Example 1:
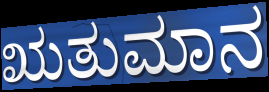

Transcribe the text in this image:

ಋತುಮಾನ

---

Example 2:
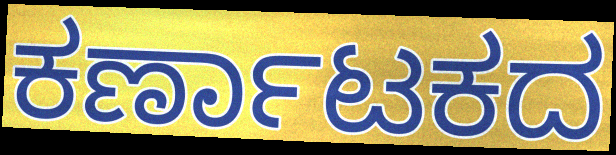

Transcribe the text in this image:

ಕರ್ಣಾಟಕದ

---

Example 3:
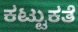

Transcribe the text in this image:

ಕಟ್ಟುಕತೆ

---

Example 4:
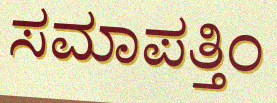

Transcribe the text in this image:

ಸಮಾಪತ್ತಿಂ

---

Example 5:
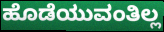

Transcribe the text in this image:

ಹೊಡೆಯುವಂತಿಲ್ಲ